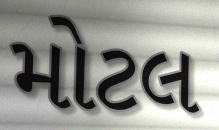
મોટલ